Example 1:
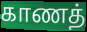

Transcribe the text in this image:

காணத்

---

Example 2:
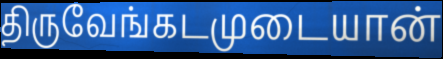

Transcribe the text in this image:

திருவேங்கடமுடையான்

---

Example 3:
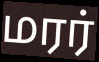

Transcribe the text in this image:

மரர்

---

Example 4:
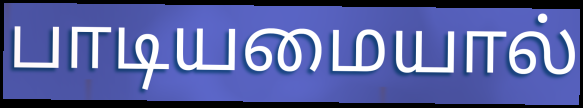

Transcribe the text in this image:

பாடியமையால்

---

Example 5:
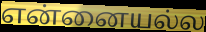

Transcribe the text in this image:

என்னையல்ல